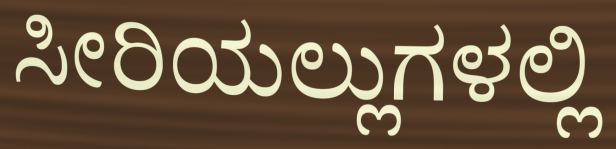
ಸೀರಿಯಲ್ಲುಗಳಲ್ಲಿ